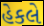
હેકલે